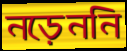
নড়েননি